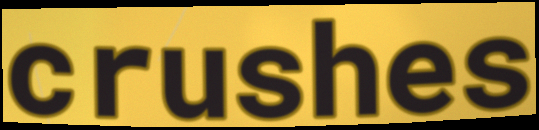
crushes